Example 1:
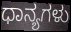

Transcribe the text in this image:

ಧಾನ್ಯಗಳು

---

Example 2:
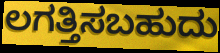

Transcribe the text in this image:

ಲಗತ್ತಿಸಬಹುದು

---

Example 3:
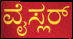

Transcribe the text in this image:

ವೈಸ್ಲರ್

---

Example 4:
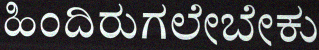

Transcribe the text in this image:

ಹಿಂದಿರುಗಲೇಬೇಕು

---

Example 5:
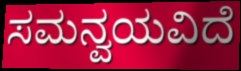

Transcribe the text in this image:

ಸಮನ್ವಯವಿದೆ